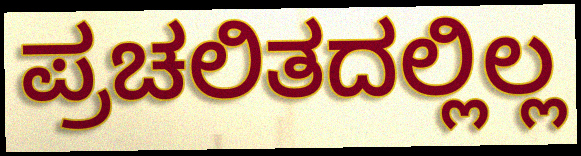
ಪ್ರಚಲಿತದಲ್ಲಿಲ್ಲ